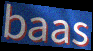
baas